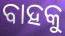
ବାହକୁ